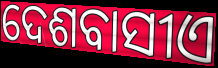
ଦେଶବାସୀଏ